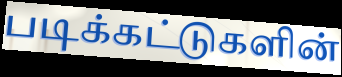
படிக்கட்டுகளின்